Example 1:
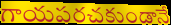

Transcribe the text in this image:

గాయపరచకుండానే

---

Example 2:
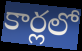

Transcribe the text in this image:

కార్లలో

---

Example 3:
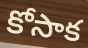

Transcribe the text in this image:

కోసాక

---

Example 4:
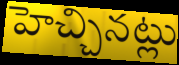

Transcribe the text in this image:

హెచ్చినట్లు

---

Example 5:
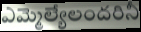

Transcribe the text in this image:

ఎమ్మెల్యేలందరినీ